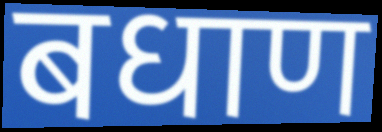
बधाण